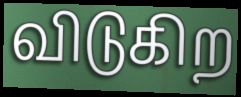
விடுகிற